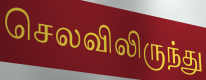
செலவிலிருந்து